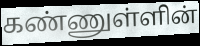
கண்ணுள்ளின்